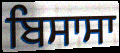
ਬਿਸਾਸਾ